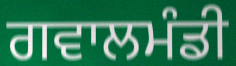
ਗਵਾਲਮੰਡੀ